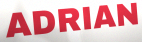
ADRIAN